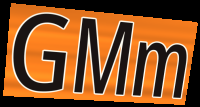
GMm